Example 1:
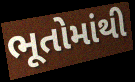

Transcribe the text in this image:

ભૂતોમાંથી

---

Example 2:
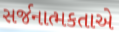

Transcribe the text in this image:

સર્જનાત્મકતાએ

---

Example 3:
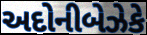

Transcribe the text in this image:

અદોનીબેઝેકે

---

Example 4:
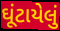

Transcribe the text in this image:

ઘૂંટાયેલું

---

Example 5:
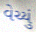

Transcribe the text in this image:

વેચ્યું